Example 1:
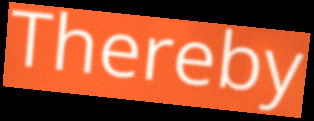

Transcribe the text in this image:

Thereby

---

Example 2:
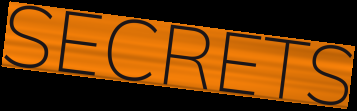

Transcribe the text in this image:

SECRETS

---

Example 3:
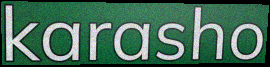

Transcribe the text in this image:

karasho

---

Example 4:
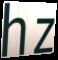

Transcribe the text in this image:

hz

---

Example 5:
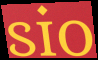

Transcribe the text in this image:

sio